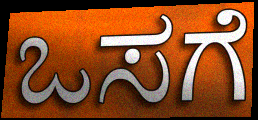
ಒಸಗೆ